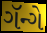
ગૅન્ગે